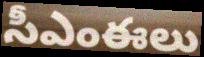
సీఎంఈలు